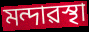
মন্দাৱস্থা